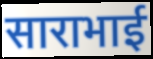
साराभाई